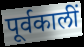
पूर्वकालीं